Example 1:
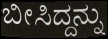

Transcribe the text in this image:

ಬೀಸಿದ್ದನ್ನು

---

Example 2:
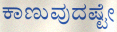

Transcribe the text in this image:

ಕಾಣುವುದಷ್ಟೇ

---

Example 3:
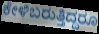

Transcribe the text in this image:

ಕೇಳಿಬರುತ್ತಿದ್ದರೂ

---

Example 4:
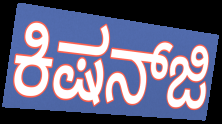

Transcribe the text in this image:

ಕಿಷನ್‌ಜಿ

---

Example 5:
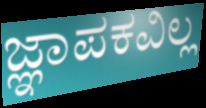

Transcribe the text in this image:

ಜ್ಞಾಪಕವಿಲ್ಲ